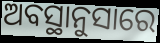
ଅବସ୍ଥାନୁସାରେ